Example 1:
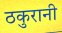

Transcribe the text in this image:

ठकुरानी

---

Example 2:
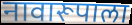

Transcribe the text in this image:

नावारूपाला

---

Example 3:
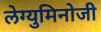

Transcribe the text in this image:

लेग्युमिनोजी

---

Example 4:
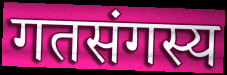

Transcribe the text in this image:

गतसंगस्य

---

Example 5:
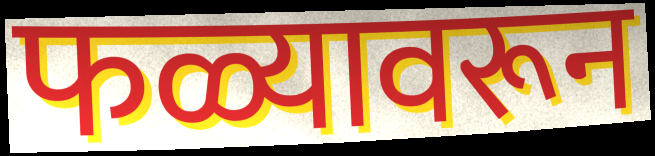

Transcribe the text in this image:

फळ्यावरून